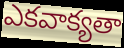
ఎకవాక్యతా